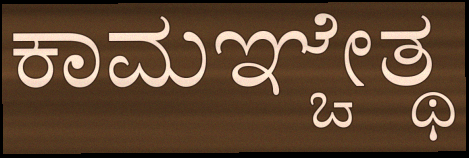
ಕಾಮಞ್ಚೇತ್ಥ